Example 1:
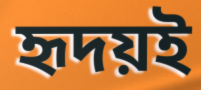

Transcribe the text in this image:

হৃদয়ই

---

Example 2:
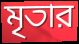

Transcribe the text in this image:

মৃতার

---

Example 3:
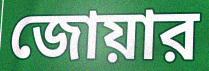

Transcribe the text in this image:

জোয়ার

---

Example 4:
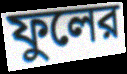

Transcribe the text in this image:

ফুলের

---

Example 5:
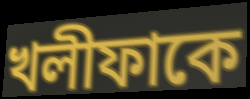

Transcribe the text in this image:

খলীফাকে